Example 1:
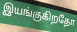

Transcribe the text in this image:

இயங்குகிறதோ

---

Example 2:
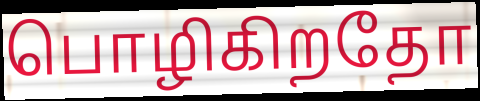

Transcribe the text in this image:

பொழிகிறதோ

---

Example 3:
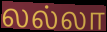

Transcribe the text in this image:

லல்லா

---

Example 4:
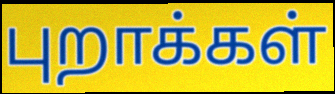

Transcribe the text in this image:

புறாக்கள்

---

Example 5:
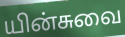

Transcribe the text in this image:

யின்சுவை